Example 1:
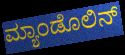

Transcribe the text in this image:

ಮ್ಯಾಂಡೊಲಿನ್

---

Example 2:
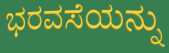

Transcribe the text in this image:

ಭರವಸೆಯನ್ನು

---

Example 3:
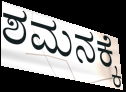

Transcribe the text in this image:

ಶಮನಕ್ಕೆ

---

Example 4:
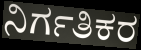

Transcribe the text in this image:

ನಿರ್ಗತಿಕರ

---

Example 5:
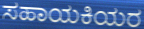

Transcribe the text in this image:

ಸಹಾಯಕಿಯರ